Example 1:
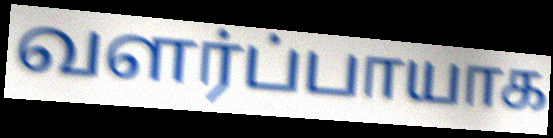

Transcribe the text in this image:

வளர்ப்பாயாக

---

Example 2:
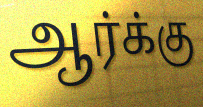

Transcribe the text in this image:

ஆர்க்கு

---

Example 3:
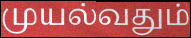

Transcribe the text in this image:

முயல்வதும்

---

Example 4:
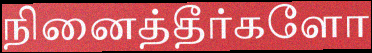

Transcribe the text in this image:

நினைத்தீர்களோ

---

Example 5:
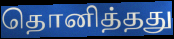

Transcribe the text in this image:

தொனித்தது